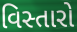
વિસ્તારો